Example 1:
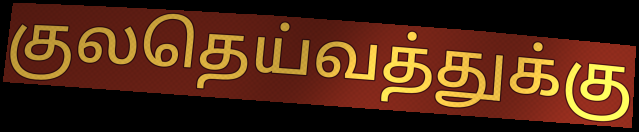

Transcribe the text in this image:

குலதெய்வத்துக்கு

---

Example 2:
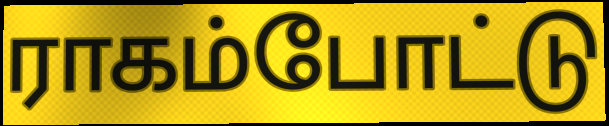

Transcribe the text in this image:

ராகம்போட்டு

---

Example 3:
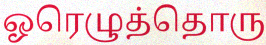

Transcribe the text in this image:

ஓரெழுத்தொரு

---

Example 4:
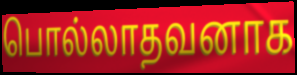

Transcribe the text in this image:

பொல்லாதவனாக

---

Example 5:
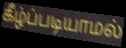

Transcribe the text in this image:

கீழ்ப்படியாமல்